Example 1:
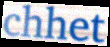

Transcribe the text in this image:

chhet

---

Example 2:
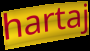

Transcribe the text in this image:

hartaj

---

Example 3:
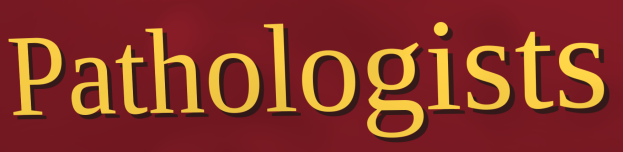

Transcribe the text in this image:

Pathologists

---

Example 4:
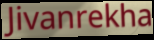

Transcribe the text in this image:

Jivanrekha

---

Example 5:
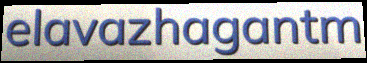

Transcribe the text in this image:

elavazhagantm